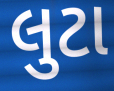
લુટા